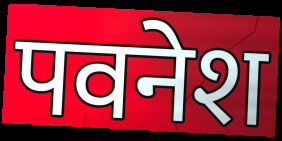
पवनेश